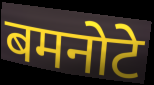
बमनोटे